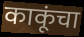
काकूंचा